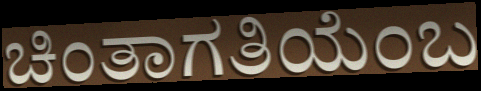
ಚಿಂತಾಗತಿಯೆಂಬ